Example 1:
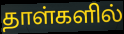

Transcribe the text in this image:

தாள்களில்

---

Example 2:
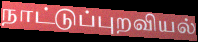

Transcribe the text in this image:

நாட்டுப்புறவியல்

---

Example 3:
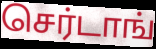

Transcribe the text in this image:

செர்டாங்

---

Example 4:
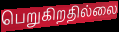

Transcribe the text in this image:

பெறுகிறதில்லை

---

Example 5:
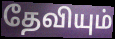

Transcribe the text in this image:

தேவியும்